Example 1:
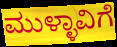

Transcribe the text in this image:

ಮುಳ್ಳಾವಿಗೆ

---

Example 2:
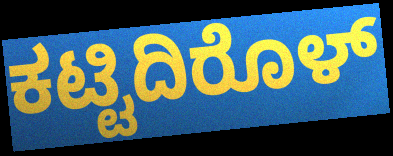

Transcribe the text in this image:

ಕಟ್ಟಿದಿರೊಳ್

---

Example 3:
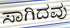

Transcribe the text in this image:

ಸಾಗಿದವು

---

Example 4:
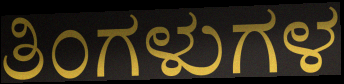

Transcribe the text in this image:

ತಿಂಗಳುಗಳ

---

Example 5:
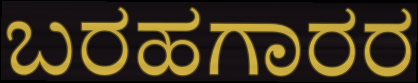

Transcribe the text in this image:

ಬರಹಗಾರರ